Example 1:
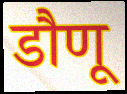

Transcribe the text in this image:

डौणू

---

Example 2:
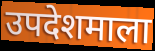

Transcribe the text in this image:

उपदेशमाला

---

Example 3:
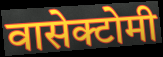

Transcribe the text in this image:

वासेक्टोमी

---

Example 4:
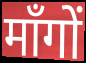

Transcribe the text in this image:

माँगों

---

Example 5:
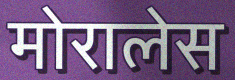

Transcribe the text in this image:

मोरालेस